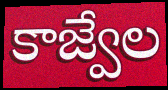
కాజ్వేల